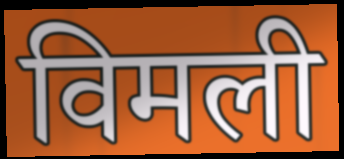
विमली